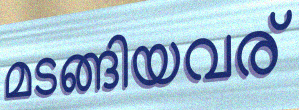
മടങ്ങിയവര്